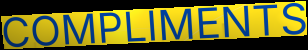
COMPLIMENTS